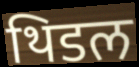
थिडल